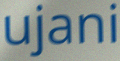
ujani